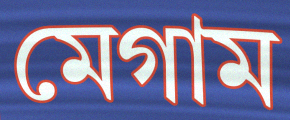
মেগাম